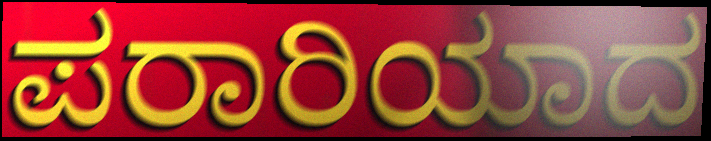
ಪರಾರಿಯಾದ